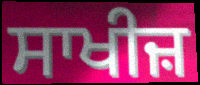
ਸਾਖੀਜ਼